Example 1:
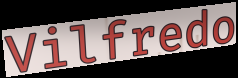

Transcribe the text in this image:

Vilfredo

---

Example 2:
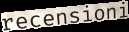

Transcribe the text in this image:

recensioni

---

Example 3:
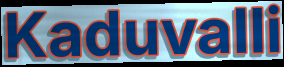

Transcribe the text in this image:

Kaduvalli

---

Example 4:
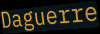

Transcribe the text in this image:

Daguerre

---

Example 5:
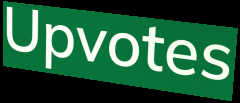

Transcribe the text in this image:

Upvotes